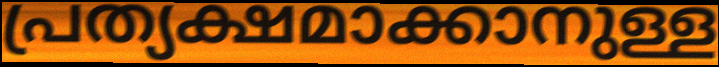
പ്രത്യക്ഷമാക്കാനുള്ള